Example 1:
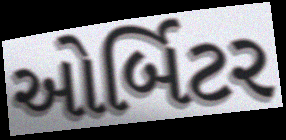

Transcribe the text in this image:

ઓર્બિટર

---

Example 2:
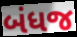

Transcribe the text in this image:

બંધજ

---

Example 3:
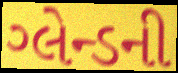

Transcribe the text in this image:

ગ્લેન્ડની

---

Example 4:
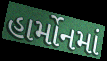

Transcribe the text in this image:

હાર્મોનમાં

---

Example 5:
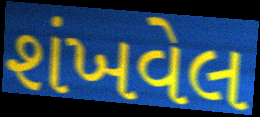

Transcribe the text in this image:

શંખવેલ